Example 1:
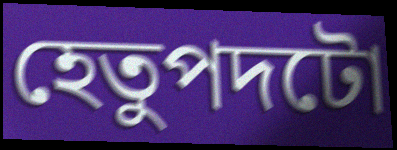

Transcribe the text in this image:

হেতুপদটো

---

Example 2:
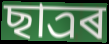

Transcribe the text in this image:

ছাত্ৰৰ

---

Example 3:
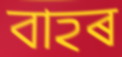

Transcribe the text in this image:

বাহৰ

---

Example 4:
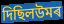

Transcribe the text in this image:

দিছিলউমৰ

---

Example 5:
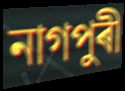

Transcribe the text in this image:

নাগপুৰী